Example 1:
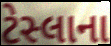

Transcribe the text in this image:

ટેસ્લાના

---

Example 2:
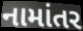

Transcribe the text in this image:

નામાંતર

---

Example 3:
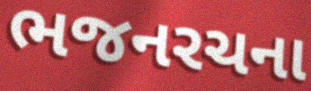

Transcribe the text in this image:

ભજનરચના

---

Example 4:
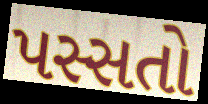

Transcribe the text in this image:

પસ્સતો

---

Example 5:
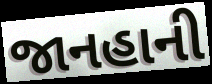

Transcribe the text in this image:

જાનહાની